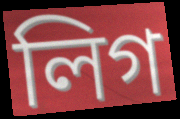
লিগ